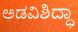
ಅಡವಿಶಿದ್ಧಾ